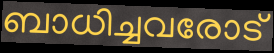
ബാധിച്ചവരോട്